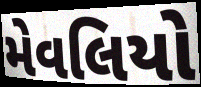
મેવલિયો